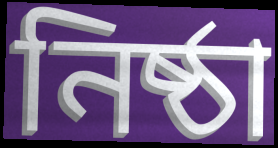
নিষ্ঠা